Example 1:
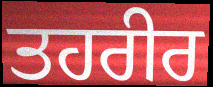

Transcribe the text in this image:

ਤਹਰੀਰ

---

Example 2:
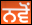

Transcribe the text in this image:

ਨਵੋਂ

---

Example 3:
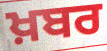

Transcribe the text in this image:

ਖ਼ਬਰ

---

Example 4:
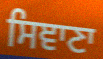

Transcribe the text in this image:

ਸਿਞਾਣਾ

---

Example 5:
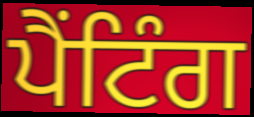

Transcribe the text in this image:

ਪੈਂਟਿੰਗ